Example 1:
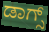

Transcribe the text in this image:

ಡಾಗ್ಸ್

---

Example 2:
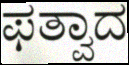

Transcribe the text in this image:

ಫತ್ವಾದ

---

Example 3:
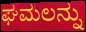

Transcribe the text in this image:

ಘಮಲನ್ನು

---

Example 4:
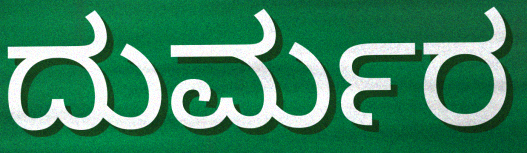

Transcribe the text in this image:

ದುರ್ಮರ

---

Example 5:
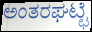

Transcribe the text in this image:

ಅಂತರಘಟ್ಟೆ